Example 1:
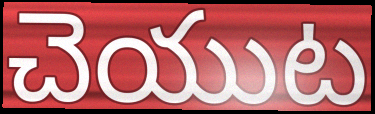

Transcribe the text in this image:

చెయుట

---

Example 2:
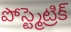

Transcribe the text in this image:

పోస్ట్మెట్రిక్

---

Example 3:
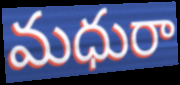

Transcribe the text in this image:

మధురా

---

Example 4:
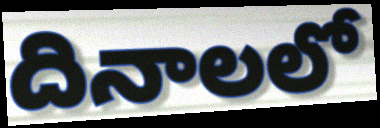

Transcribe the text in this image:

దినాలలో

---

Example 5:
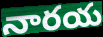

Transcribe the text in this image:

నారయ